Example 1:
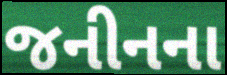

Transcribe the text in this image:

જનીનના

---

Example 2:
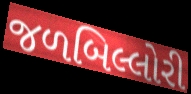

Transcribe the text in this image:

જળબિલ્લોરી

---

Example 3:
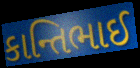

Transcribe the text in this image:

કાન્તિભાઈ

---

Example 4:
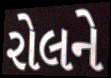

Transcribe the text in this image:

રોલને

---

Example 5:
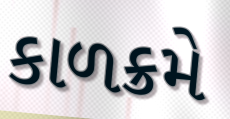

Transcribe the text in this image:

કાળક્રમે